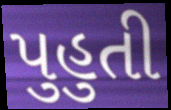
પુહુતી